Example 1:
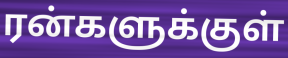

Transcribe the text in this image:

ரன்களுக்குள்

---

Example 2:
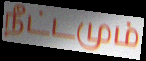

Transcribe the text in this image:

நீட்டமும்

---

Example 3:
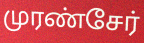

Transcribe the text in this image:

முரண்சேர்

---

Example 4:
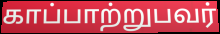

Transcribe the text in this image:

காப்பாற்றுபவர்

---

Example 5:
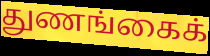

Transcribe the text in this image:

துணங்கைக்